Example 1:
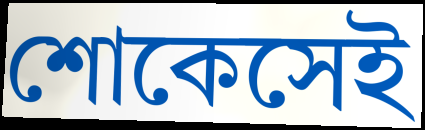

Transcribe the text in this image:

শোকেসেই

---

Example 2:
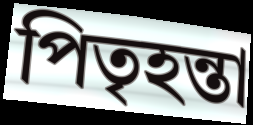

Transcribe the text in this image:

পিতৃহন্তা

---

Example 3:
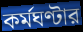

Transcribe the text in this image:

কর্মঘণ্টার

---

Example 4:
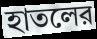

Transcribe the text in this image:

হাতলের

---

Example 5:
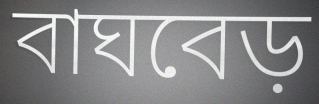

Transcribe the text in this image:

বাঘবেড়